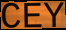
CEY